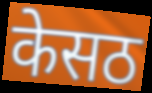
केसठ